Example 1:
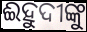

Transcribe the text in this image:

ଈହୁଦୀଙ୍କୁ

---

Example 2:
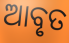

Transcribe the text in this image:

ଆବୃତ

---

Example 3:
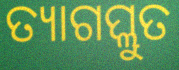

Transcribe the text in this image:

ତ୍ୟାଗପ୍ଲୁତ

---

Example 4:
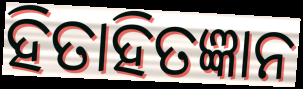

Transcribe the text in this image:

ହିତାହିତଜ୍ଞାନ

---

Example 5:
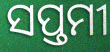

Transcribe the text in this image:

ସପ୍ତମୀ